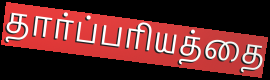
தார்ப்பரியத்தை